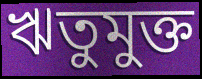
ঋতুমুক্ত